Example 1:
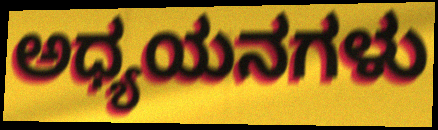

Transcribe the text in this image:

ಅಧ್ಯಯನಗಳು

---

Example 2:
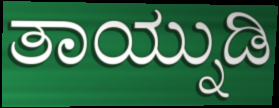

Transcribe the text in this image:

ತಾಯ್ನುಡಿ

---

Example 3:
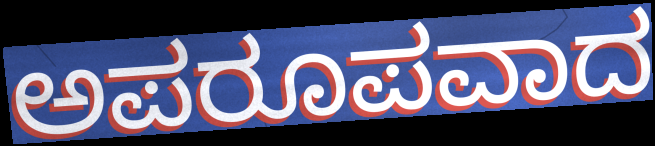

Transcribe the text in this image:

ಅಪರೂಪವಾದ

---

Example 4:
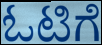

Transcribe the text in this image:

ಓಟಿಗೆ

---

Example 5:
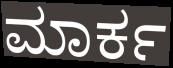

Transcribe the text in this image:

ಮಾರ್ಕ